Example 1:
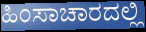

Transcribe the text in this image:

ಹಿಂಸಾಚಾರದಲ್ಲಿ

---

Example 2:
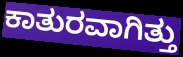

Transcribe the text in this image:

ಕಾತುರವಾಗಿತ್ತು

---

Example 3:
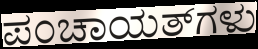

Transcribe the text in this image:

ಪಂಚಾಯತ್‌ಗಳು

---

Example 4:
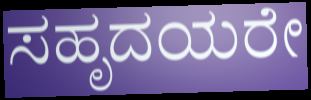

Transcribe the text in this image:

ಸಹೃದಯರೇ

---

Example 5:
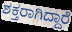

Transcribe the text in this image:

ಶಕ್ತರಾಗಿದ್ದಾರೆ